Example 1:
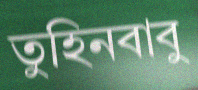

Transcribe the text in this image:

তুহিনবাবু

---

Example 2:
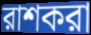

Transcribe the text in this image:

রাশকরা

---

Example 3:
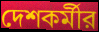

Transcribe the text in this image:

দেশকর্মীর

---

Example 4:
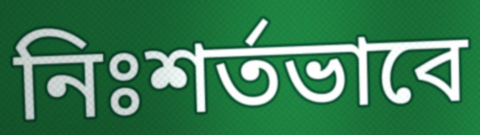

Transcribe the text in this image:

নিঃশর্তভাবে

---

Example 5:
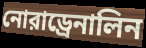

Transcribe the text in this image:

নোরাড্রেনালিন